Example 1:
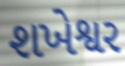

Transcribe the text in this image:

શખેશ્વર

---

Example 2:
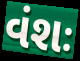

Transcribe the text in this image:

વંશઃ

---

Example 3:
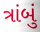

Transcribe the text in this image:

ત્રાંબું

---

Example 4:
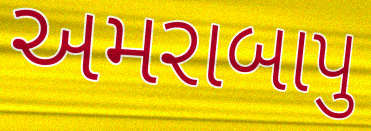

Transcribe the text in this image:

અમરાબાપુ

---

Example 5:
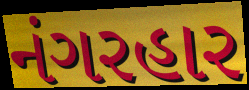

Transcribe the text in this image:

નંગરહાર